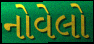
નોવેલો